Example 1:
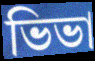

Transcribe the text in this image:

ভিভা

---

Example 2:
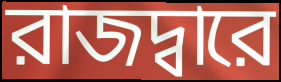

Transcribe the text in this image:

রাজদ্বারে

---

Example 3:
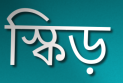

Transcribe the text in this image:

স্কিড়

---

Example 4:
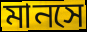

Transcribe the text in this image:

মানসে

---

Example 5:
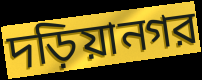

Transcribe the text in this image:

দড়িয়ানগর